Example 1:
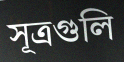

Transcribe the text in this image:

সূত্রগুলি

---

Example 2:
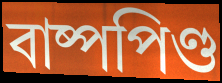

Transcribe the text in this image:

বাষ্পপিণ্ড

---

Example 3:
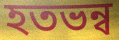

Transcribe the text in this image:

হতভন্ব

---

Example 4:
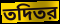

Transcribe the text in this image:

তদিতর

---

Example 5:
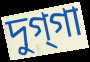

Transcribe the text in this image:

দুগ্‌গা